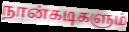
நான்கடிகளும்